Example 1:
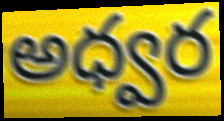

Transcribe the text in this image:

అధ్వర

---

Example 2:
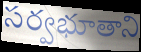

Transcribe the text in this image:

సర్వభూతాని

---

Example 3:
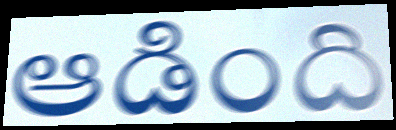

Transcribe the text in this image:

ఆడింది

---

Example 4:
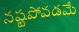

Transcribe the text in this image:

నష్టపోవడమే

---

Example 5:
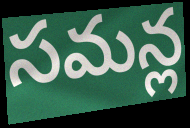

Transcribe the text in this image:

సమన్ల